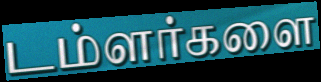
டம்ளர்களை